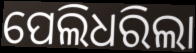
ପେଲିଧରିଲା